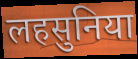
लहसुनिया